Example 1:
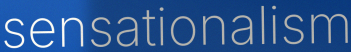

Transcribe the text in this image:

sensationalism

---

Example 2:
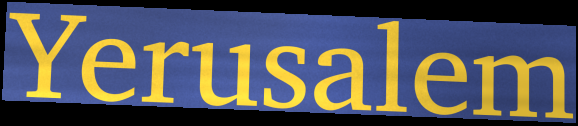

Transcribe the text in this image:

Yerusalem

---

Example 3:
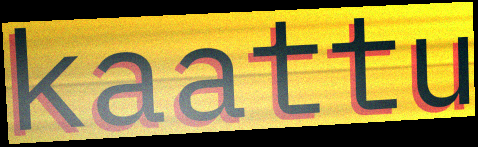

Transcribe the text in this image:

kaattu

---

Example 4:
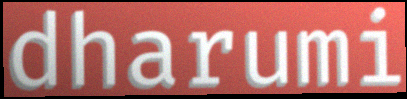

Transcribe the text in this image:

dharumi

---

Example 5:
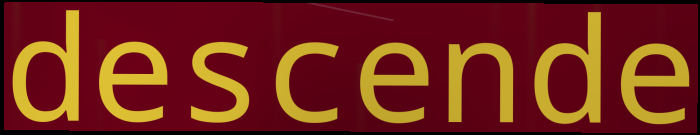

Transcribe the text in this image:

descende